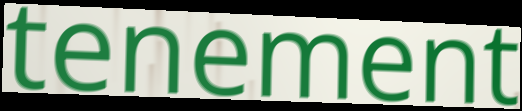
tenement